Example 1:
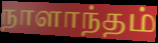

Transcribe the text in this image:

நாளாந்தம்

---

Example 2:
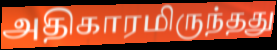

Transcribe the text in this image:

அதிகாரமிருந்தது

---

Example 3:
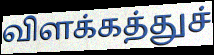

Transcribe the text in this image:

விளக்கத்துச்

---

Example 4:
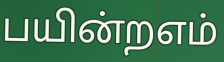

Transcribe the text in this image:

பயின்றஎம்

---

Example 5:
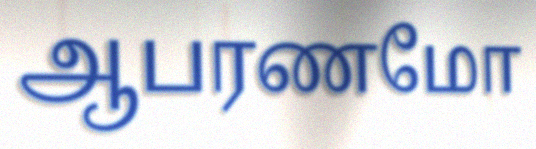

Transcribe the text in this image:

ஆபரணமோ